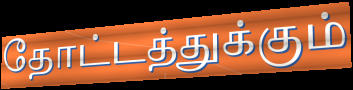
தோட்டத்துக்கும்